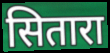
सितारा